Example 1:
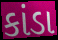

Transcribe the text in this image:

કાંડા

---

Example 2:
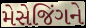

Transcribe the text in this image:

મેસેજિંગને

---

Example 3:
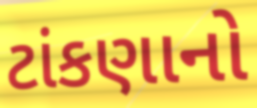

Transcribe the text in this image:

ટાંકણાનો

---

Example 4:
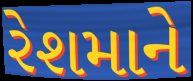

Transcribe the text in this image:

રેશમાને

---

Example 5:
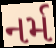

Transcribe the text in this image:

નર્મ